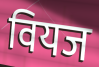
वियज